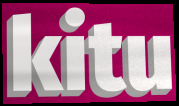
kitu